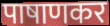
पाषाणकर